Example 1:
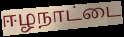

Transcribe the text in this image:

ஈழநாட்டை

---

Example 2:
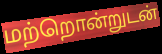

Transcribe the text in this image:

மற்றொன்றுடன்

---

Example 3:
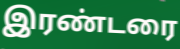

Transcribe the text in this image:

இரண்டரை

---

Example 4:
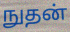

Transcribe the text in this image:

நுதன்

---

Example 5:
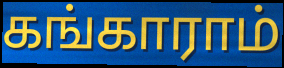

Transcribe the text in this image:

கங்காராம்